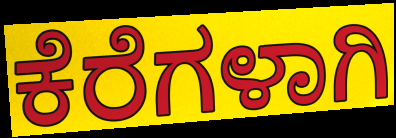
ಕೆರೆಗಳಾಗಿ